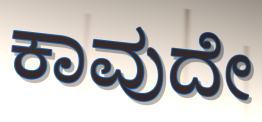
ಕಾವುದೇ